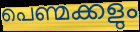
പെണ്മക്കളും